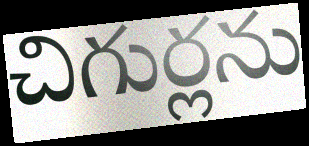
చిగుర్లను